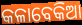
କଳାବେକିଆ